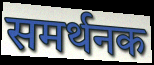
समर्थनक